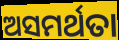
ଅସମର୍ଥତା